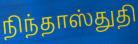
நிந்தாஸ்துதி